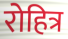
रोहित्र